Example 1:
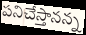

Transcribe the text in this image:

పనిచేస్తానన్న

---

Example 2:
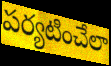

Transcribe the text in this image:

పర్యటించేలా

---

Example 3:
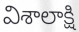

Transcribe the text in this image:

విశాలాక్షి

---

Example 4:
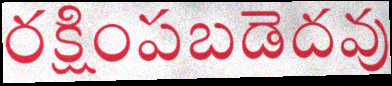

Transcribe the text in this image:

రక్షింపబడెదవు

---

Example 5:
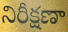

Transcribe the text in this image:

నిరీక్షణా